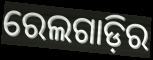
ରେଲଗାଡ଼ିର